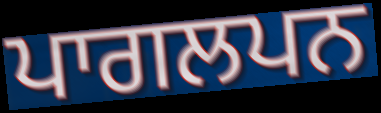
ਪਾਗਲਪਨ